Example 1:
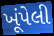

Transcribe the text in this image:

ખૂંપેલી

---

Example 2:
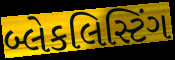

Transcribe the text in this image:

બ્લેકલિસ્ટિંગ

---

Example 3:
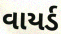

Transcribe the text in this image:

વાયર્ડ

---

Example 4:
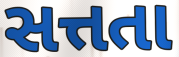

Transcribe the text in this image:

સત્તતા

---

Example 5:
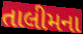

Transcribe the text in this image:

તાલીમના